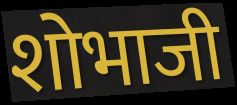
शोभाजी